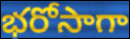
భరోసాగా